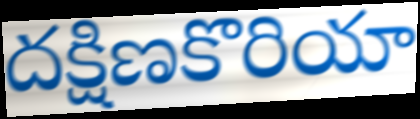
దక్షిణకొరియా